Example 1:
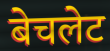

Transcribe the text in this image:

बेचलेट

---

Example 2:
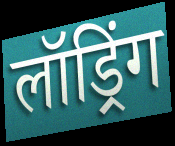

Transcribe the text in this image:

लॉड्रिंग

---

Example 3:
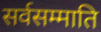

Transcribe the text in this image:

सर्वसम्माति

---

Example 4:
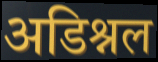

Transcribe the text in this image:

अडिश्नल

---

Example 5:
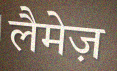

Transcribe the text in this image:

लैमेज़